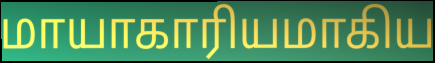
மாயாகாரியமாகிய